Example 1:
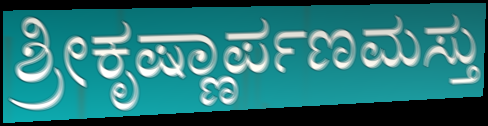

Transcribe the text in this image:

ಶ್ರೀಕೃಷ್ಣಾರ್ಪಣಮಸ್ತು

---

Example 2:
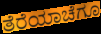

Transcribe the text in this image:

ತೆರೆಯಾಚೆಗೂ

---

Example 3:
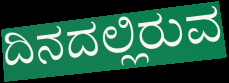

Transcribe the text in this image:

ದಿನದಲ್ಲಿರುವ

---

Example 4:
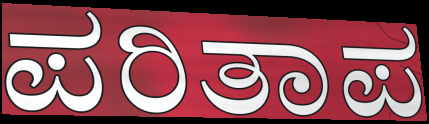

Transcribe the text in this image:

ಪರಿತಾಪ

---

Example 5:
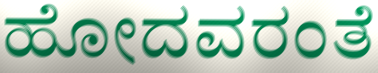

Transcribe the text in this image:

ಹೋದವರಂತೆ